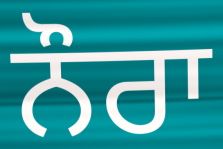
ਨੌਰਾ